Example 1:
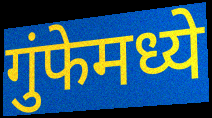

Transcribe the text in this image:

गुंफेमध्ये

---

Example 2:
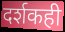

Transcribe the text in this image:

दर्शकही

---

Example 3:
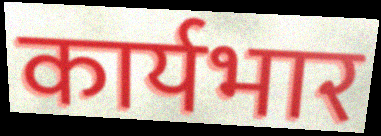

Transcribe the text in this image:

कार्यभार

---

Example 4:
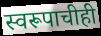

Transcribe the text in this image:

स्वरूपाचीही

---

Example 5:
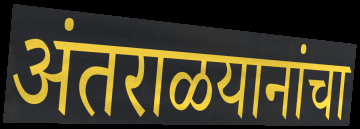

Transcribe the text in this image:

अंतराळयानांचा